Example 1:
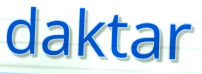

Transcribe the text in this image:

daktar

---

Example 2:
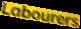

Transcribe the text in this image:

Labourers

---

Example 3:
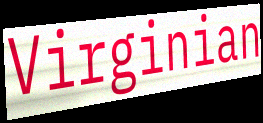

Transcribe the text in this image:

Virginian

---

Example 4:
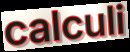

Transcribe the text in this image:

calculi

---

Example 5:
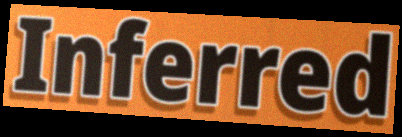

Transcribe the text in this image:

Inferred